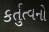
કર્તુત્વનો